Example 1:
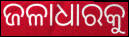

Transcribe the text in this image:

ଜଳାଧାରକୁ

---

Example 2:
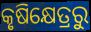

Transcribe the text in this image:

କୃଷିକ୍ଷେତ୍ରରୁ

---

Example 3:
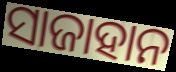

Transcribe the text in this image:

ସାଜାହାନ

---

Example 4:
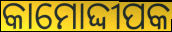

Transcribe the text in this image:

କାମୋଦ୍ଦୀପକ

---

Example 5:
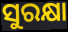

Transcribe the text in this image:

ସୁରକ୍ଷା